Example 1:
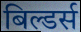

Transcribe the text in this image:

बिल्डर्स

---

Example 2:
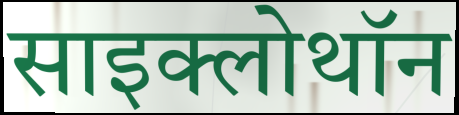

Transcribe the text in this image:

साइक्लोथॉन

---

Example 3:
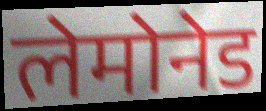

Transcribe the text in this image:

लेमोनेड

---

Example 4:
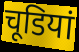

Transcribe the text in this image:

चूडियां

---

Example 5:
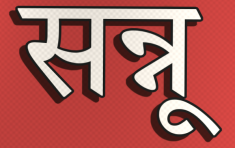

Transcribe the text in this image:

सन्नू